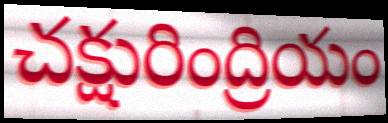
చక్షురింద్రియం